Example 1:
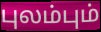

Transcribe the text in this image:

புலம்பும்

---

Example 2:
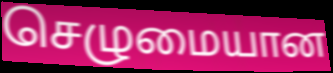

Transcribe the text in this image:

செழுமையான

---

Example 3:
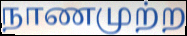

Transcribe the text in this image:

நாணமுற்ற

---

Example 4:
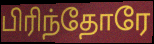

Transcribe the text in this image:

பிரிந்தோரே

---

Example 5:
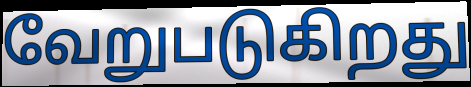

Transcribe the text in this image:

வேறுபடுகிறது